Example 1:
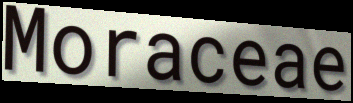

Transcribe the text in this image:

Moraceae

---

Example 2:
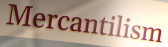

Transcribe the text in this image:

Mercantilism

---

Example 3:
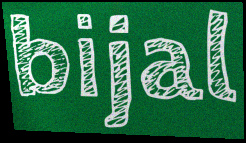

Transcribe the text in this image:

bijal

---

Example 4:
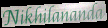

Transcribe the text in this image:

Nikhilananda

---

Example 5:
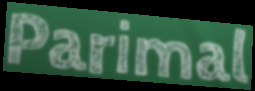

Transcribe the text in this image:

Parimal